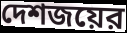
দেশজয়ের